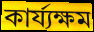
কাৰ্য্যক্ষম